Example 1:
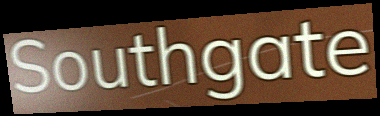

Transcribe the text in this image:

Southgate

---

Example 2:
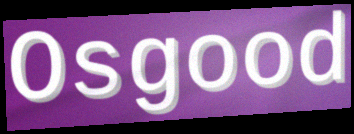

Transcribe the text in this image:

Osgood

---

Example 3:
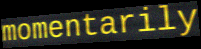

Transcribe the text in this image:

momentarily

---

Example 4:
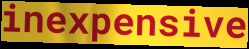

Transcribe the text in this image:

inexpensive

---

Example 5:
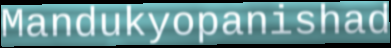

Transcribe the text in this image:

Mandukyopanishad